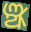
ଞ୍ଝ